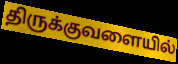
திருக்குவளையில்